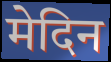
मेदिन